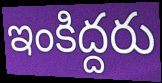
ఇంకిద్దరు